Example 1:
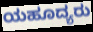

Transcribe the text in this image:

ಯಹೂದ್ಯರು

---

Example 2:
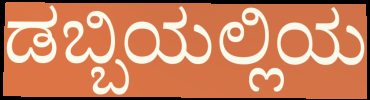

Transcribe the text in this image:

ಡಬ್ಬಿಯಲ್ಲಿಯ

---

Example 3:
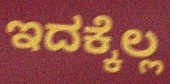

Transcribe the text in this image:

ಇದಕ್ಕೆಲ್ಲ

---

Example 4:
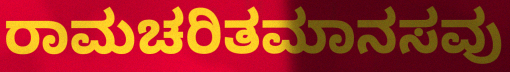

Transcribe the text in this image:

ರಾಮಚರಿತಮಾನಸವು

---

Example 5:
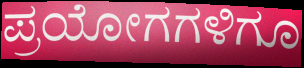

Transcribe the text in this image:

ಪ್ರಯೋಗಗಳಿಗೂ